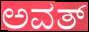
ಅವತ್